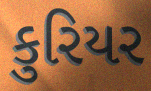
કુરિયર